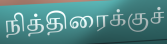
நித்திரைக்குச்